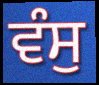
ਵੰਸੁ